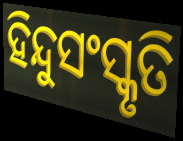
ହିନ୍ଦୁସଂସ୍କୃତି